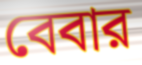
বেবার